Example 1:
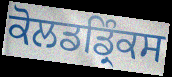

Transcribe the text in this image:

ਕੋਲਡਡ੍ਰਿੰਕਸ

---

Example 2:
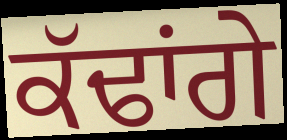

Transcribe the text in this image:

ਕੱਢਾਂਗੇ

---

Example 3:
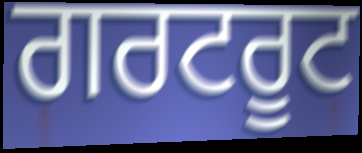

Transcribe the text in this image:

ਗਰਟਰੂਟ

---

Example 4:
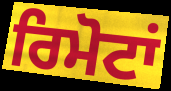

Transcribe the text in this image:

ਰਿਮੋਟਾਂ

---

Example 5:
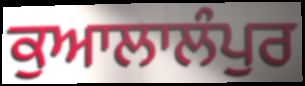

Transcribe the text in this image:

ਕੁਆਲਾਲੰਪੁਰ